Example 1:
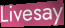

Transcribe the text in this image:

Livesay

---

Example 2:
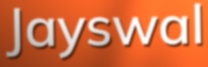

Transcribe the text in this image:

Jayswal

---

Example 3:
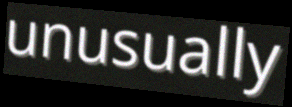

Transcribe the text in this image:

unusually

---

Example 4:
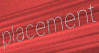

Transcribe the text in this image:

placement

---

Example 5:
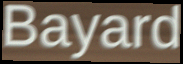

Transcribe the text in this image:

Bayard